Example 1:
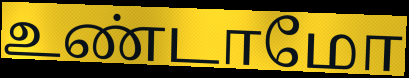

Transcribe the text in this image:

உண்டாமோ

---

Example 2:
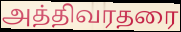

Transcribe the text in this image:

அத்திவரதரை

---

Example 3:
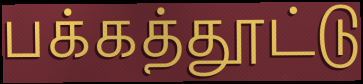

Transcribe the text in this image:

பக்கத்தூட்டு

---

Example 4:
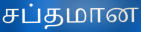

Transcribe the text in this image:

சப்தமான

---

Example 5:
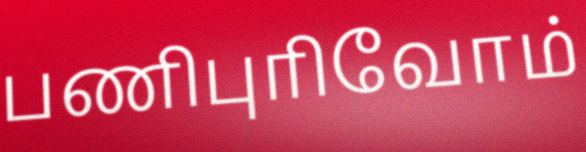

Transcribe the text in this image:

பணிபுரிவோம்